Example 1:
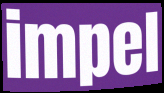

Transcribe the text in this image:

impel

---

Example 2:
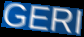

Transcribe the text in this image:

GERI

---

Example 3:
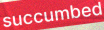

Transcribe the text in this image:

succumbed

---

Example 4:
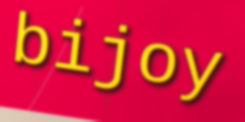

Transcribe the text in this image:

bijoy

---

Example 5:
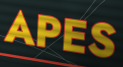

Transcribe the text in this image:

APES